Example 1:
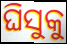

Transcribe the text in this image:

ଘିସୁକୁ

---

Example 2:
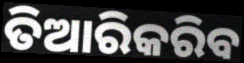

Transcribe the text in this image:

ତିଆରିକରିବ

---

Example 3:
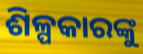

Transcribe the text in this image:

ଶିଳ୍ପକାରଙ୍କୁ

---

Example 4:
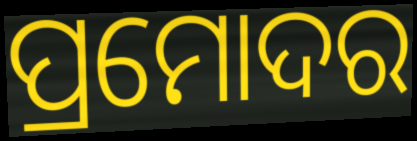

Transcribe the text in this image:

ପ୍ରମୋଦର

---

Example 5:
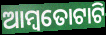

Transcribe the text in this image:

ଆମ୍ବତୋଟାଟି